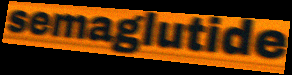
semaglutide